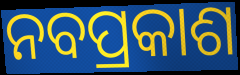
ନବପ୍ରକାଶ